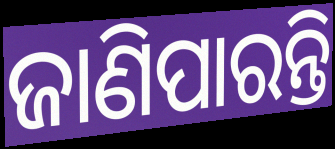
ଜାଣିପାରନ୍ତି